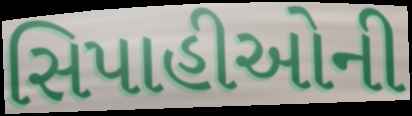
સિપાહીઓની